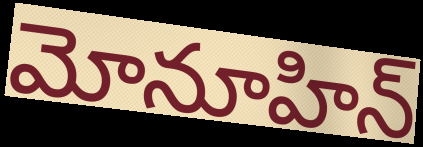
మోనూహిన్